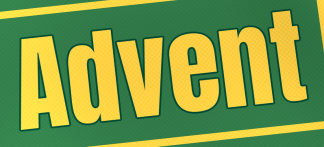
Advent